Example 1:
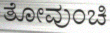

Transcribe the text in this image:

ತೋವುಂಚಿ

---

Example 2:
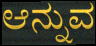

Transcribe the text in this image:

ಆನ್ನುವ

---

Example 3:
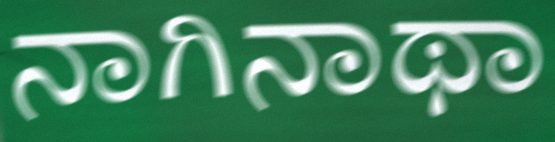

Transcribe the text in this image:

ನಾಗಿನಾಥಾ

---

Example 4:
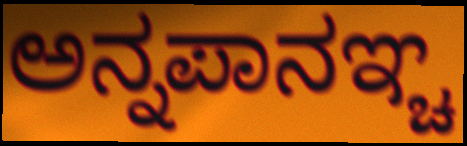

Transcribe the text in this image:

ಅನ್ನಪಾನಞ್ಚ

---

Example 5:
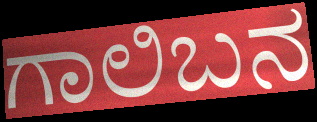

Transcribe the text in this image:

ಗಾಲಿಬನ